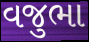
વજુભા